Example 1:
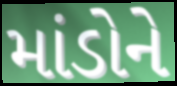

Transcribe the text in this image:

માંડોને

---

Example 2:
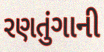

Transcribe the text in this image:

રણતુંગાની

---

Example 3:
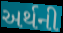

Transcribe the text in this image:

અર્થની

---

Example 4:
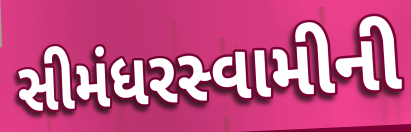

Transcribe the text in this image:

સીમંધરસ્વામીની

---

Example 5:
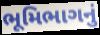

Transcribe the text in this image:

ભૂમિભાગનું